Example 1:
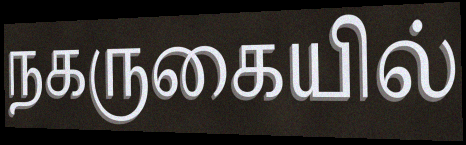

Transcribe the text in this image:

நகருகையில்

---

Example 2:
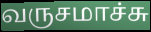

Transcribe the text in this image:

வருசமாச்சு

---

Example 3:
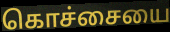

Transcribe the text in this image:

கொச்சையை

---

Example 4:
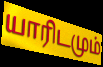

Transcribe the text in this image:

யாரிடமும்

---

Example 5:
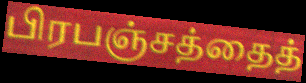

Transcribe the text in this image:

பிரபஞ்சத்தைத்